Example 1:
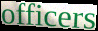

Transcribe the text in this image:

officers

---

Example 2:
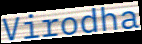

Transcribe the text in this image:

Virodha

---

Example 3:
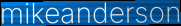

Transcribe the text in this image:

mikeanderson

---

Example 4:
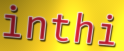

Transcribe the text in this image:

inthi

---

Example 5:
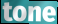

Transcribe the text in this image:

tone